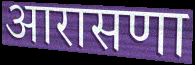
आरासणा